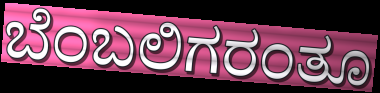
ಬೆಂಬಲಿಗರಂತೂ